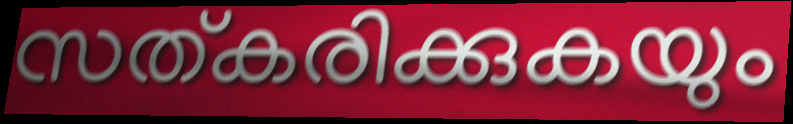
സത്കരിക്കുകയും